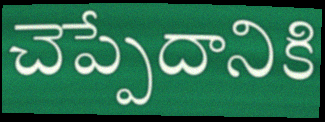
చెప్పేదానికి